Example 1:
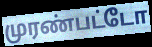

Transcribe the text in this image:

முரண்பட்டோ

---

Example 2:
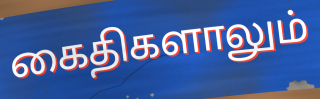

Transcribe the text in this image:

கைதிகளாலும்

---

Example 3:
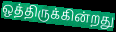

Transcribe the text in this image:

ஒத்திருக்கின்றது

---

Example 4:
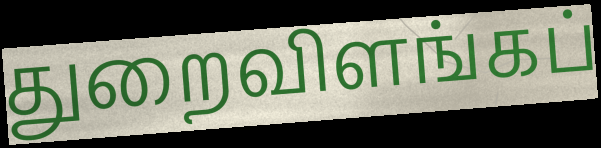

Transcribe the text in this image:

துறைவிளங்கப்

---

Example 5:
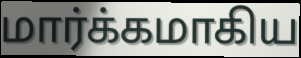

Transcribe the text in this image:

மார்க்கமாகிய